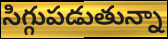
సిగ్గుపడుతున్నా